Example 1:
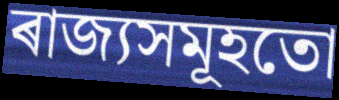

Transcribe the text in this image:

ৰাজ্যসমূহতো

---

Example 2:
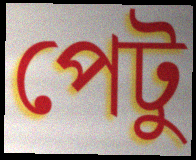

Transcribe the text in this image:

পেটু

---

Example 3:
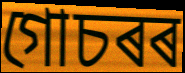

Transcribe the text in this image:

গোচৰৰ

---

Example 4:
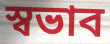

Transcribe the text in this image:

স্বভাব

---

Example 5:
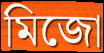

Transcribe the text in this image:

মিজো